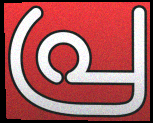
പ്ര